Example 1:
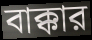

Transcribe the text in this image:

বাক্কার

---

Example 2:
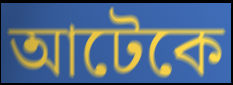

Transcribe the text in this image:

আটেকে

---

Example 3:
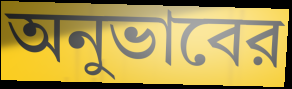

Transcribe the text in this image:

অনুভাবের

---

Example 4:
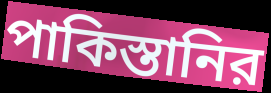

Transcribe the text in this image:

পাকিস্তানির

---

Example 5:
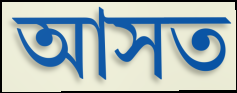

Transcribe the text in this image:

আসত